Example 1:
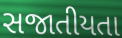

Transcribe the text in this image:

સજાતીયતા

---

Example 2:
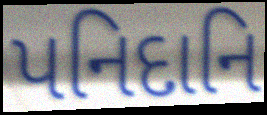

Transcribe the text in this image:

પનિદાનિ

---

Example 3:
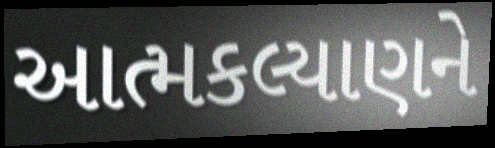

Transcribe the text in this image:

આત્મકલ્યાણને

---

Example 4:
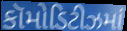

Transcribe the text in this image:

કૉમોડિટીઝમાં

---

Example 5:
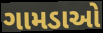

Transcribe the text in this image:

ગામડાઓ